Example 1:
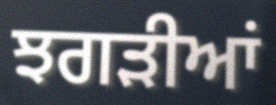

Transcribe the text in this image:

ਝਗੜੀਆਂ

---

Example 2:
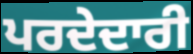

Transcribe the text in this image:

ਪਰਦੇਦਾਰੀ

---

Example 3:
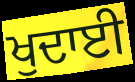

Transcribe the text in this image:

ਖੁਦਾਈ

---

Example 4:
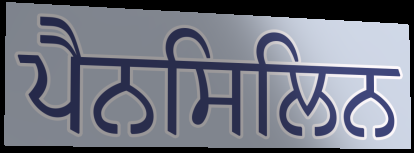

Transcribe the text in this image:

ਪੈਨਸਿਲਿਨ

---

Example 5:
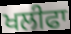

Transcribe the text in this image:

ਖਲੀਫਾ